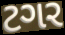
ટગર